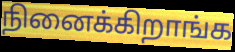
நினைக்கிறாங்க